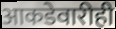
आकडेवारीही